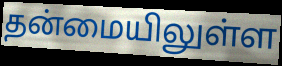
தன்மையிலுள்ள